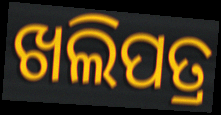
ଖଲିପତ୍ର